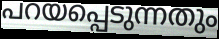
പറയപ്പെടുന്നതും